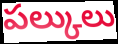
పల్కులు